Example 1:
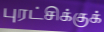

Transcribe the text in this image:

புரட்சிக்குக்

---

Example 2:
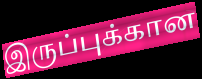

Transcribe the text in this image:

இருப்புக்கான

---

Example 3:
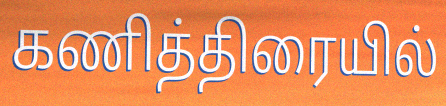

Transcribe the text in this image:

கணித்திரையில்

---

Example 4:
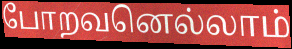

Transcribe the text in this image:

போறவனெல்லாம்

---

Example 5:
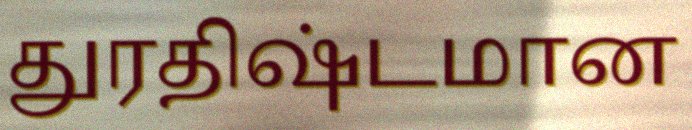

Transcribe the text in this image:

துரதிஷ்டமான